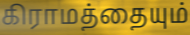
கிராமத்தையும்